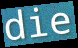
die